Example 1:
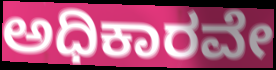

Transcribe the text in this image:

ಅಧಿಕಾರವೇ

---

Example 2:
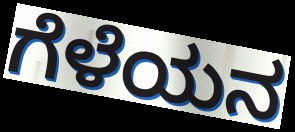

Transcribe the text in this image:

ಗೆಳೆಯನ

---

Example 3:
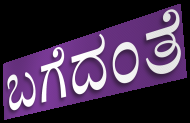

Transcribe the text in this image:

ಬಗೆದಂತೆ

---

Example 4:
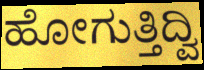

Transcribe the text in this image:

ಹೋಗುತ್ತಿದ್ವಿ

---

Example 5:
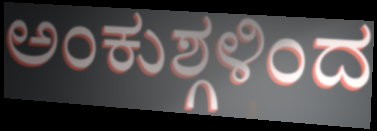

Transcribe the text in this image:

ಅಂಕುಶ್ಗಳಿಂದ